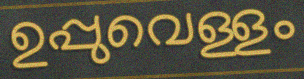
ഉപ്പുവെള്ളം